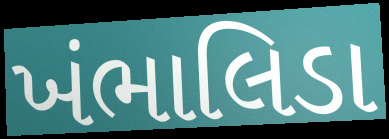
ખંભાલિડા